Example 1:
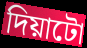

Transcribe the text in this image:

দিয়াটো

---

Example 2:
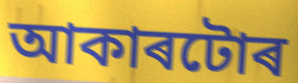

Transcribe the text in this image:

আকাৰটোৰ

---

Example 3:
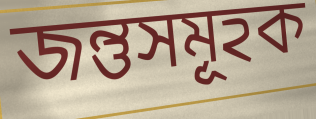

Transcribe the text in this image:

জন্তুসমূহক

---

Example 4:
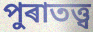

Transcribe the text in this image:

পুৰাতত্ত্ব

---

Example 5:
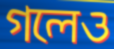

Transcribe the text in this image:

গলেও